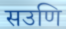
सउणि